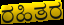
ರಹಿತರ